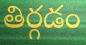
తిర్గడం